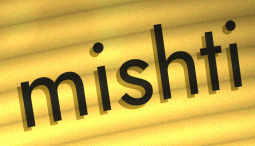
mishti